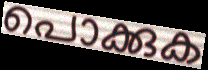
പൊക്കുക